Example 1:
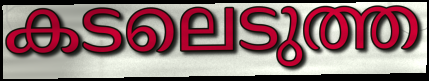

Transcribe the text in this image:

കടലെടുത്ത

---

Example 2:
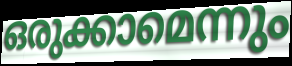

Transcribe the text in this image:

ഒരുക്കാമെന്നും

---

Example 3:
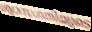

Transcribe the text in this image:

ശ്വാസഗതിയുടെ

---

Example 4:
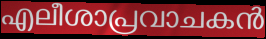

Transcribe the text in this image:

എലീശാപ്രവാചകൻ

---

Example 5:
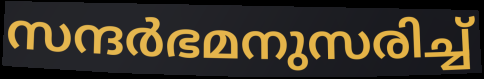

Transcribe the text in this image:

സന്ദർഭമനുസരിച്ച്